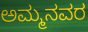
ಅಮ್ಮನವರ